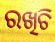
ରଖିଚି